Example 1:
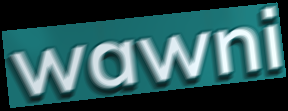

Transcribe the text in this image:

wawni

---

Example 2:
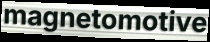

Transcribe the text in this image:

magnetomotive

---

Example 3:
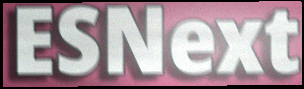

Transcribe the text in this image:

ESNext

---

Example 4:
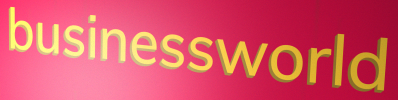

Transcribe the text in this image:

businessworld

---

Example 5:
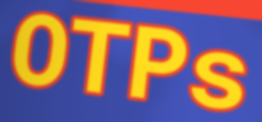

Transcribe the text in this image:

OTPs